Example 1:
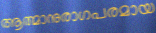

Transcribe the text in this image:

ആത്മാനുരാഗപരമായ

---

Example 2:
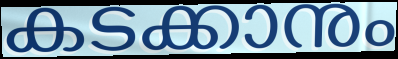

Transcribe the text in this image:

കടക്കാനും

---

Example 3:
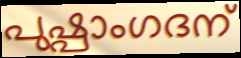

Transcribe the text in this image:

പുഷ്പാംഗദന്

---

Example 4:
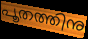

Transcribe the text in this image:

പൂതത്തിനു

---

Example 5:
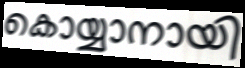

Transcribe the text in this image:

കൊയ്യാനായി